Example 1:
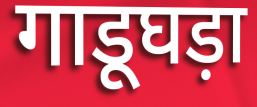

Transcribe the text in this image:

गाडूघड़ा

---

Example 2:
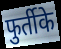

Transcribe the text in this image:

फुर्तीके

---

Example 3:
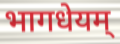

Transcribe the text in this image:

भागधेयम्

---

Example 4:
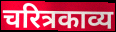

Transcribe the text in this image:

चरित्रकाव्य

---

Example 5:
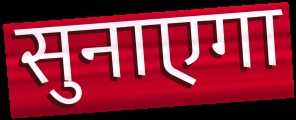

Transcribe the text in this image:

सुनाएगा